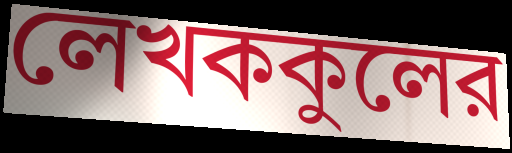
লেখককুলের